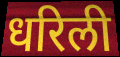
धरिली